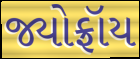
જ્યોફ્રૉય